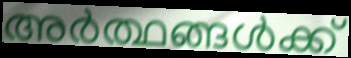
അർത്ഥങ്ങൾക്ക്